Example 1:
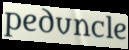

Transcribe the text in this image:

peduncle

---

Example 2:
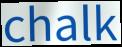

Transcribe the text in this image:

chalk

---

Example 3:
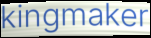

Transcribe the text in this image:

kingmaker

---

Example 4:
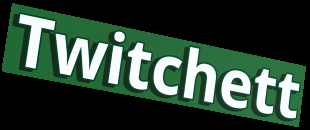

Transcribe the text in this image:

Twitchett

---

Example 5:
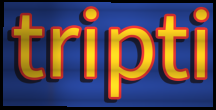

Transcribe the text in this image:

tripti